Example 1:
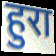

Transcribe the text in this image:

हुरा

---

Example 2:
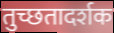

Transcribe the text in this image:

तुच्छतादर्शक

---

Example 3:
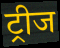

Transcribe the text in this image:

ट्रीज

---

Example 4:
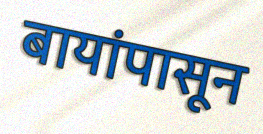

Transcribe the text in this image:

बायांपासून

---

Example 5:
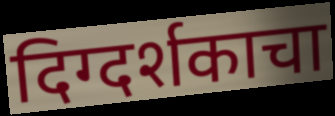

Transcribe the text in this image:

दिग्दर्शकाचा